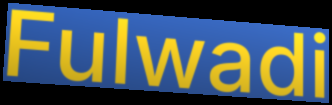
Fulwadi